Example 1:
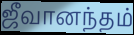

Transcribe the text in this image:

ஜீவானந்தம்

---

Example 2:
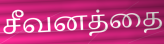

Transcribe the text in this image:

சீவனத்தை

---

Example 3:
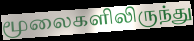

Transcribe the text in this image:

மூலைகளிலிருந்து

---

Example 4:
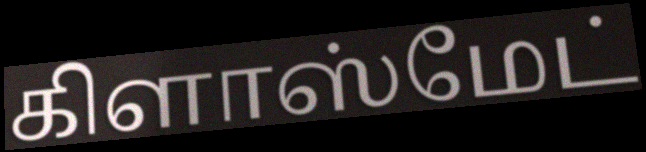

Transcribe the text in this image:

கிளாஸ்மேட்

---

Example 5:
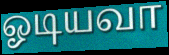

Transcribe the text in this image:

ஓடியவா